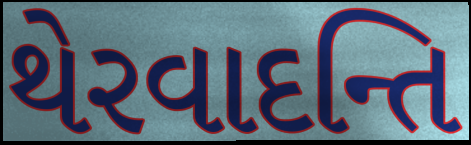
થેરવાદન્તિ